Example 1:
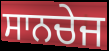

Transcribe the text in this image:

ਸਾਨਚੇਜ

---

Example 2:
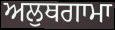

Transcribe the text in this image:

ਅਲੁਥਗਾਮਾ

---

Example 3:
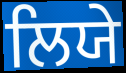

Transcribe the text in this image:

ਲਿਯੇ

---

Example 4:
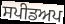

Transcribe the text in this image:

ਸਪੀਡਅਪ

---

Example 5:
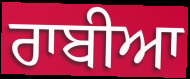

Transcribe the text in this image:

ਰਾਬੀਆ